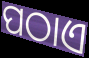
ପଠାଏ